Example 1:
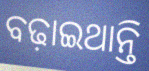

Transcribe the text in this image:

ବଢ଼ାଇଥାନ୍ତି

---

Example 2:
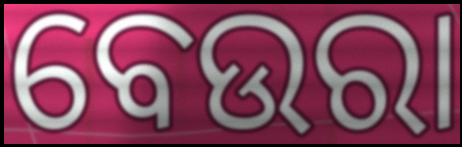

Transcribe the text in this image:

ବେଉରା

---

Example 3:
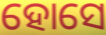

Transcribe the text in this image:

ହୋସେ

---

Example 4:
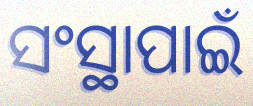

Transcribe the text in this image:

ସଂସ୍ଥାପାଇଁ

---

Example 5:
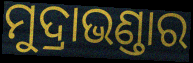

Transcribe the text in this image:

ମୁଦ୍ରାଭଣ୍ଡାର